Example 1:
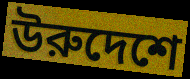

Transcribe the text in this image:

উরুদেশে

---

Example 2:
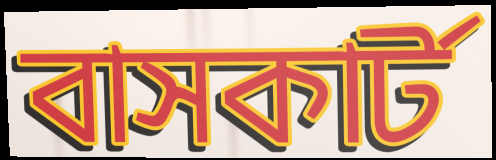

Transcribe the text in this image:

বাসকার্ট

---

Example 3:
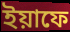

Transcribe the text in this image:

ইয়াফে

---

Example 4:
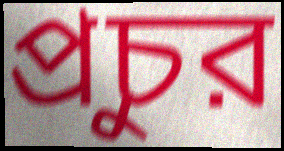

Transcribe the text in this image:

প্রচুর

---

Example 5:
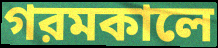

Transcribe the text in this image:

গরমকালে